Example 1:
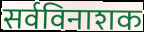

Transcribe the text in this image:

सर्वविनाशक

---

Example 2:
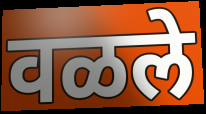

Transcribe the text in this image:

वळले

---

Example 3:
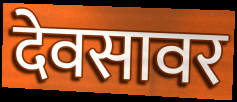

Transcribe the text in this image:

देवसावर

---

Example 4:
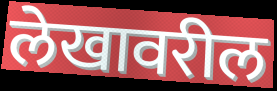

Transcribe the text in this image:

लेखावरील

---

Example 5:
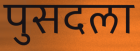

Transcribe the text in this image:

पुसदला